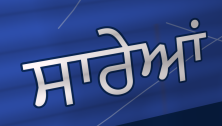
ਸਾਰੇਆਂ